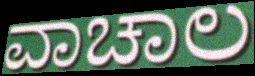
ವಾಚಾಲ